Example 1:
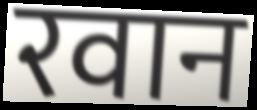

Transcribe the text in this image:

रवान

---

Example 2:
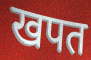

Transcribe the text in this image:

खपत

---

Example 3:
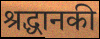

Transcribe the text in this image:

श्रद्धानकी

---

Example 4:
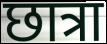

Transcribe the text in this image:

छात्रा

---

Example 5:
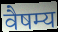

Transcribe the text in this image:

वैषम्य